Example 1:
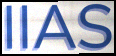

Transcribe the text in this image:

IIAS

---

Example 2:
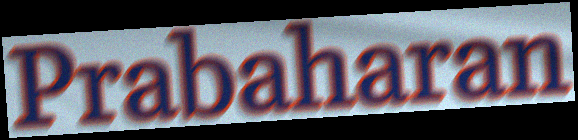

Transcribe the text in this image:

Prabaharan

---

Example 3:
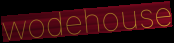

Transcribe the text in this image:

wodehouse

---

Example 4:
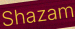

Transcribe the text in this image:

Shazam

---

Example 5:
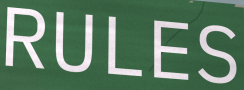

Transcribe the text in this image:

RULES